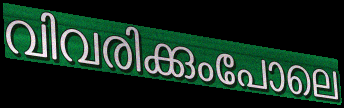
വിവരിക്കുംപോലെ